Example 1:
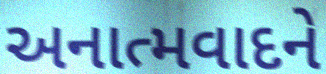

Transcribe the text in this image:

અનાત્મવાદને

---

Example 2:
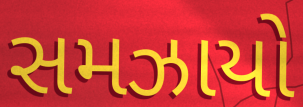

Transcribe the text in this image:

સમઝાયો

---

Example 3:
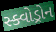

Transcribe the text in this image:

સ્ક્વોડ્રોન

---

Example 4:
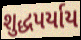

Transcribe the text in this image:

શુદ્ધપર્યાય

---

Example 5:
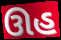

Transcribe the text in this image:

ઊહ